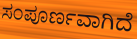
ಸಂಪೂರ್ಣವಾಗಿದೆ